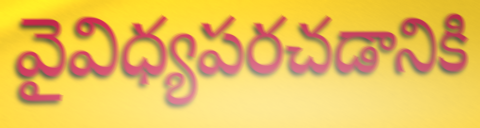
వైవిధ్యపరచడానికి